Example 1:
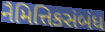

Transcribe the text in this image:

નૈમિત્તિકસંબંધ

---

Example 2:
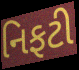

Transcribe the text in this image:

નિફટી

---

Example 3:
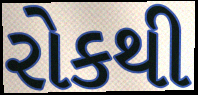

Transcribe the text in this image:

રોકથી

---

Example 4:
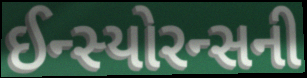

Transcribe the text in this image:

ઈન્સ્યોરન્સની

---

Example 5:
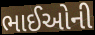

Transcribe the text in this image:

ભાઈઓની